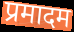
प्रमादम